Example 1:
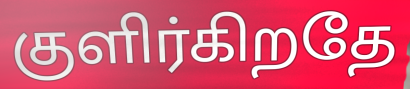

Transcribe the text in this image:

குளிர்கிறதே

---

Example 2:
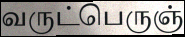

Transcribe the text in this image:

வருட்பெருஞ்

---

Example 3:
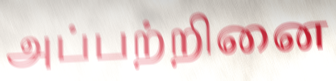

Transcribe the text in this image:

அப்பற்றினை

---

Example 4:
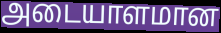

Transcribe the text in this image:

அடையாளமான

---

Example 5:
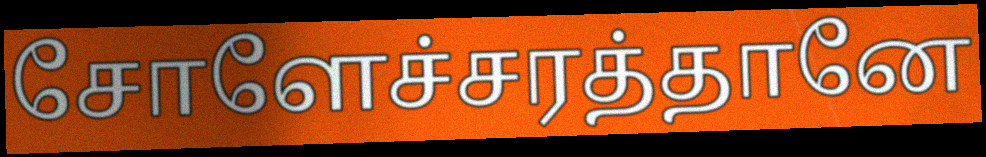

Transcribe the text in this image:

சோளேச்சரத்தானே